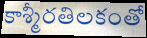
కాశ్మీరతిలకంతో